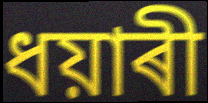
ধয়াৰী